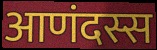
आणंदस्स